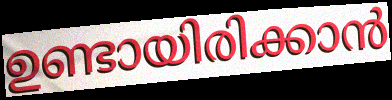
ഉണ്ടായിരിക്കാൻ